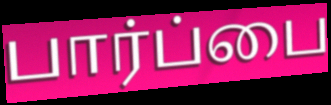
பார்ப்பை